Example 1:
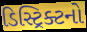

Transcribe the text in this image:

ડિસ્ટ્રિક્ટનો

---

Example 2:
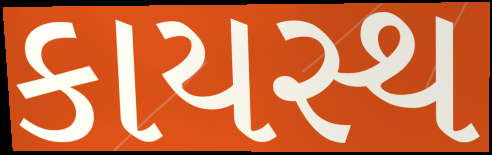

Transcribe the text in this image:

કાયસ્થ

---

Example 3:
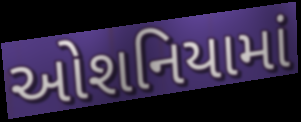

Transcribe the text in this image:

ઓશનિયામાં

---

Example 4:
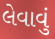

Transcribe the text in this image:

લેવાવું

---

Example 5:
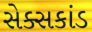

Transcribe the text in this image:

સેક્સકાંડ